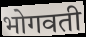
भोगवती